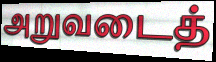
அறுவடைத்